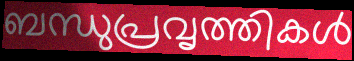
ബന്ധുപ്രവൃത്തികൾ